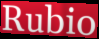
Rubio